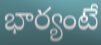
భార్యంటే